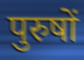
पुरुषों